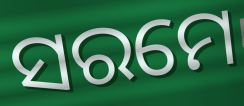
ସରମେ